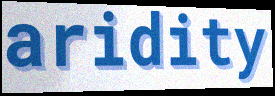
aridity